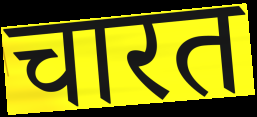
चारत